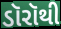
ડૉરૉથી